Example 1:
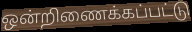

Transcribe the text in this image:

ஒன்றிணைக்கப்பட்டு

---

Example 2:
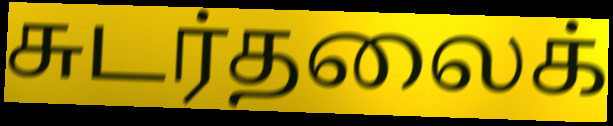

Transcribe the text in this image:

சுடர்தலைக்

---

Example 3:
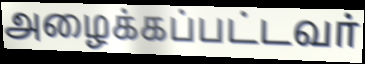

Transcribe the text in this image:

அழைக்கப்பட்டவர்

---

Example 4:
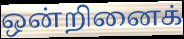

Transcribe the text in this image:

ஒன்றினைக்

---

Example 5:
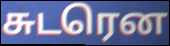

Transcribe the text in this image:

சுடரென